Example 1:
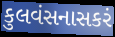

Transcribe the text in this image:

કુલવંસનાસકરં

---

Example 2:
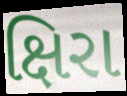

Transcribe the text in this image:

ક્ષિરા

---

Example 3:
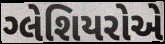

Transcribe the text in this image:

ગ્લેશિયરોએ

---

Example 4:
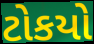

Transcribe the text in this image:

ટોકયો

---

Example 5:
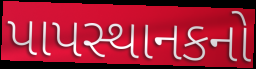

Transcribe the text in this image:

પાપસ્થાનકનો